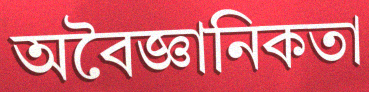
অবৈজ্ঞানিকতা